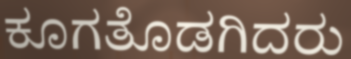
ಕೂಗತೊಡಗಿದರು